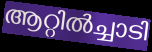
ആറ്റിൽച്ചാടി